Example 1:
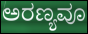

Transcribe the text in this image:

ಅರಣ್ಯವೂ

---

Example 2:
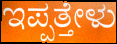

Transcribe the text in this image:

ಇಪ್ಪತ್ತೇಳು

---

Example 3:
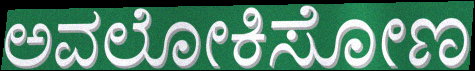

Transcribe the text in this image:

ಅವಲೋಕಿಸೋಣ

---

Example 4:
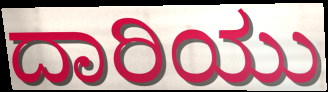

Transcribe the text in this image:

ದಾರಿಯು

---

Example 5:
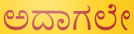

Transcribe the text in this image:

ಅದಾಗಲೇ